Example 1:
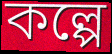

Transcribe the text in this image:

কল্পে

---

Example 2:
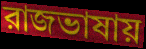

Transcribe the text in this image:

রাজভাষায়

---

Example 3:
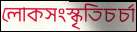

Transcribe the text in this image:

লোকসংস্কৃতিচর্চা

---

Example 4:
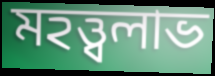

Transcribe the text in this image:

মহত্ত্বলাভ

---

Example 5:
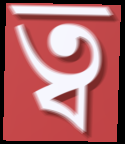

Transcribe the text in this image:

ত্ব